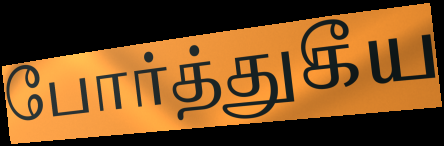
போர்த்துகீய